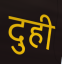
दुही